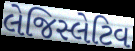
લેજિસ્લેટિવ